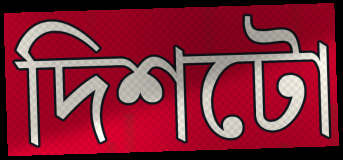
দিশটো